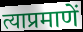
त्याप्रमाणें